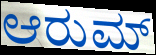
ಆರುಮ್